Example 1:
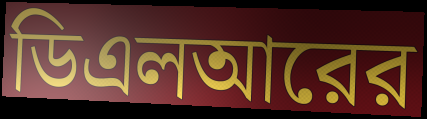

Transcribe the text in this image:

ডিএলআরের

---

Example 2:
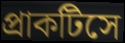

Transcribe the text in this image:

প্রাকটিসে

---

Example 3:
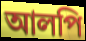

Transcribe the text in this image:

আলপি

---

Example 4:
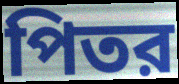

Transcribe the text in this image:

পিতর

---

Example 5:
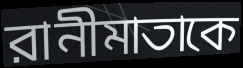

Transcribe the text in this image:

রানীমাতাকে